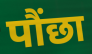
पौंछा